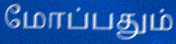
மோப்பதும்